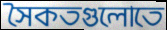
সৈকতগুলোতে